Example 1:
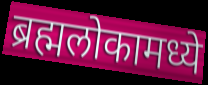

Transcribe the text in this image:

ब्रह्मलोकामध्ये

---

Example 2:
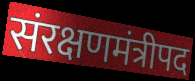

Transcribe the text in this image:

संरक्षणमंत्रीपद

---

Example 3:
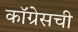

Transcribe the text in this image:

कॉग्रेसची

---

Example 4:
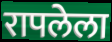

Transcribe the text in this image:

रापलेला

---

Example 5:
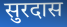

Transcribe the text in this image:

सुरदास